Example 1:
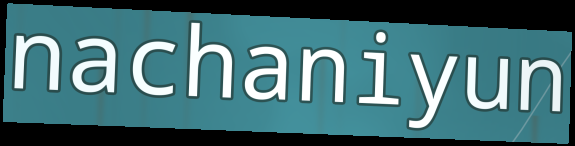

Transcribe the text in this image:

nachaniyun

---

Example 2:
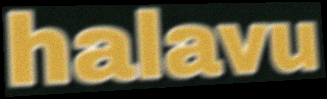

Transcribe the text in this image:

halavu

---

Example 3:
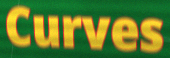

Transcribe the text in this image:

Curves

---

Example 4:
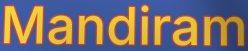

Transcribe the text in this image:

Mandiram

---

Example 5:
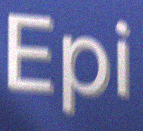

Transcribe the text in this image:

Epi